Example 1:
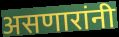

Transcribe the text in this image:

असणारांनी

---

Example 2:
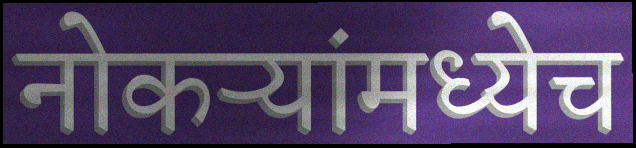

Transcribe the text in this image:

नोकऱ्यांमध्येच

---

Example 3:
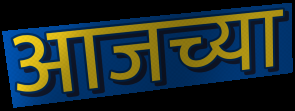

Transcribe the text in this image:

आजच्या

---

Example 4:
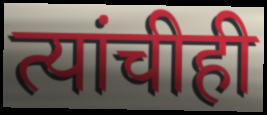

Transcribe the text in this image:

त्यांचीही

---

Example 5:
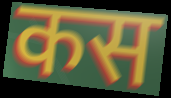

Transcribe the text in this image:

कस